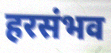
हरसंभव